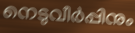
നെടുവീർപ്പിനും